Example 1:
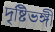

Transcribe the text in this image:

দৃষ্টিভঙ্গী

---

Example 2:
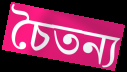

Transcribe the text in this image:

চৈতন্য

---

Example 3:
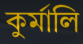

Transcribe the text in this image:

কুৰ্মালি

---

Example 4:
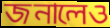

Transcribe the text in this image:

জনালেও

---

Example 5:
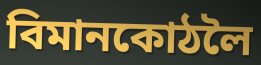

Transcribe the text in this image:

বিমানকোঠলৈ